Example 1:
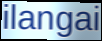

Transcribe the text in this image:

ilangai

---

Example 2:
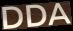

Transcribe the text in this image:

DDA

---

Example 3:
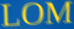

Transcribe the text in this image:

LOM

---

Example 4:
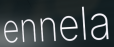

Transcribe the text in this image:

ennela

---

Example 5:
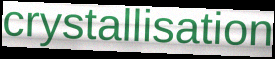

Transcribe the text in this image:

crystallisation